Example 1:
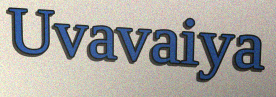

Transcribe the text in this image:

Uvavaiya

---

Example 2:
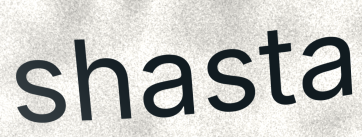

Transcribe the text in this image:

shasta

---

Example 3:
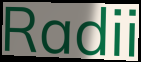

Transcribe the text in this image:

Radii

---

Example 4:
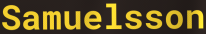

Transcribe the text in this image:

Samuelsson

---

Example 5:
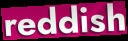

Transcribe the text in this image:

reddish